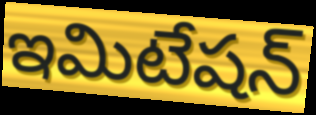
ఇమిటేషన్